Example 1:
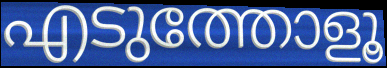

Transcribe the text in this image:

എടുത്തോളൂ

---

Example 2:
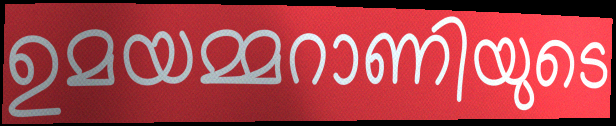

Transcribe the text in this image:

ഉമയമ്മറാണിയുടെ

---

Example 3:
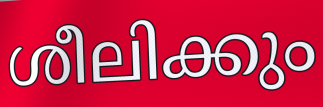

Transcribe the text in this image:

ശീലിക്കും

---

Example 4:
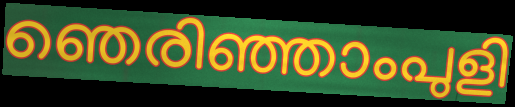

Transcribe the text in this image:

ഞെരിഞ്ഞാംപുളി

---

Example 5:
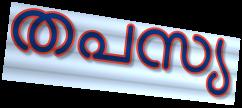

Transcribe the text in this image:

തപസ്യ